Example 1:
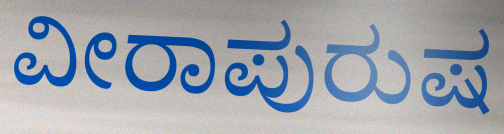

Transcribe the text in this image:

ವೀರಾಪುರುಷ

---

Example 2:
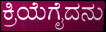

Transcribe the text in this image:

ಕ್ರಿಯೆಗೈದನು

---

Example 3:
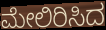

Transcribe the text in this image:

ಮೇಲಿರಿಸಿದ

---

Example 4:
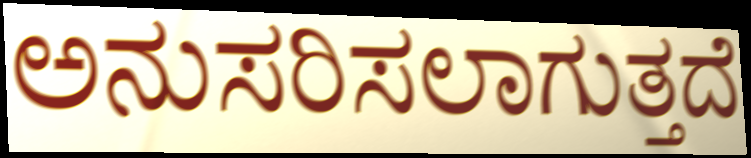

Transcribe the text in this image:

ಅನುಸರಿಸಲಾಗುತ್ತದೆ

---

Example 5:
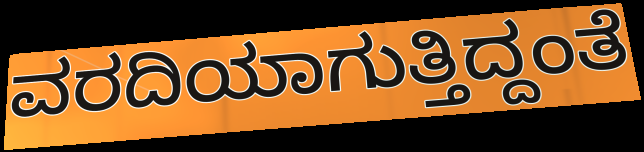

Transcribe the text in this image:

ವರದಿಯಾಗುತ್ತಿದ್ದಂತೆ